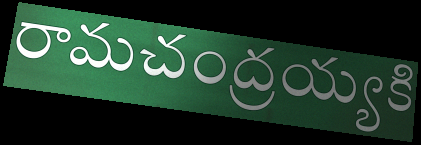
రామచంద్రయ్యకి